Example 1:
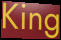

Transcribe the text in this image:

King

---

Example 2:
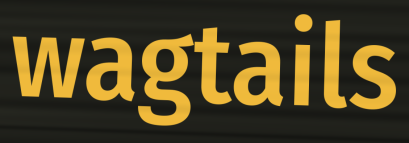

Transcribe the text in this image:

wagtails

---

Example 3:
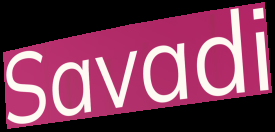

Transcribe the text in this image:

Savadi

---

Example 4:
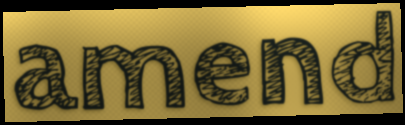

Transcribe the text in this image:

amend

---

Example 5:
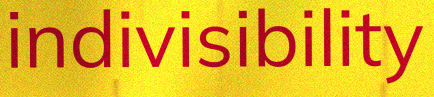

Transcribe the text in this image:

indivisibility